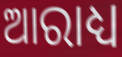
ଆରାଧ୍ୟ